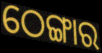
ଠେଙ୍ଗାର